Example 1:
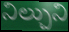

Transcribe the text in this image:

నిల్చుని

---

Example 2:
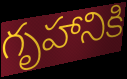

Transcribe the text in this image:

గృహానికి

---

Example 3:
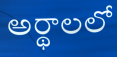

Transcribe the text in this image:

అర్థాలలో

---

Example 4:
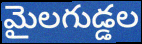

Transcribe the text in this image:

మైలగుడ్డల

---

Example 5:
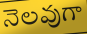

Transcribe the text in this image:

నెలవుగా